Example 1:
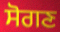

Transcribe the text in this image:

ਸੋਗਣ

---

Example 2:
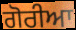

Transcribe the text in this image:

ਗੋਰੀਆ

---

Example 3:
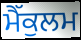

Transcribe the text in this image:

ਮੈੱਕੁਲਮ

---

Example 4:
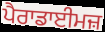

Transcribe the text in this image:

ਪੈਰਾਡਾਈਮਜ਼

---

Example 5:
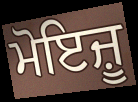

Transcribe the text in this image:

ਮੋਇਜ਼ੂ